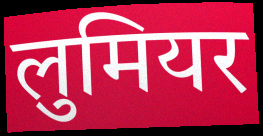
लुमियर